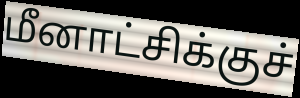
மீனாட்சிக்குச்